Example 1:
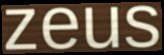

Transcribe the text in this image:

zeus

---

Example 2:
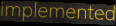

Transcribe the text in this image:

implemented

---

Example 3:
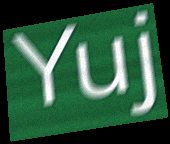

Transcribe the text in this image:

Yuj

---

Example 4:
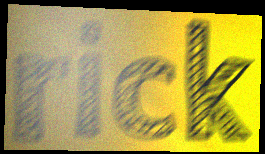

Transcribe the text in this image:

rick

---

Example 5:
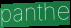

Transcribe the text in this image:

panthe